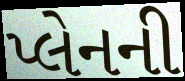
પ્લેનની